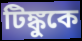
টিঙ্কুকে